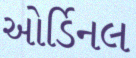
ઓર્ડિનલ